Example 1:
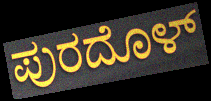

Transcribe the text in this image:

ಪುರದೊಳ್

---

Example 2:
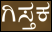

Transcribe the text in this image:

ಗಿಸ್ತಕ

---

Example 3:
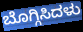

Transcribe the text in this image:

ಬೊಗ್ಗಿಸಿದಳು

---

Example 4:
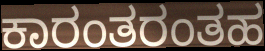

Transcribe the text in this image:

ಕಾರಂತರಂತಹ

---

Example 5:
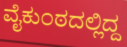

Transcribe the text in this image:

ವೈಕುಂಠದಲ್ಲಿದ್ದ